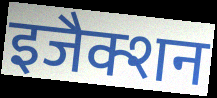
इजैक्शन